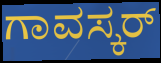
ಗಾವಸ್ಕರ್